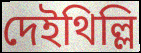
দেইথিল্লি